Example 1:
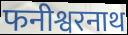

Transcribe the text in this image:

फनीश्वरनाथ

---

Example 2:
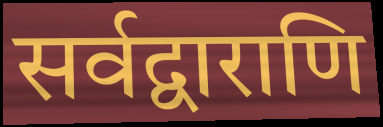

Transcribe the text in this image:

सर्वद्वाराणि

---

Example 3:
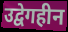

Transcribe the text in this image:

उद्वेगहीन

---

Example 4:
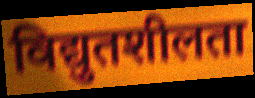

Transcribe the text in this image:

विद्युतशीलता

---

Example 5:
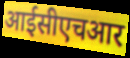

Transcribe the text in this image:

आईसीएचआर